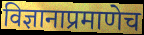
विज्ञानाप्रमाणेच